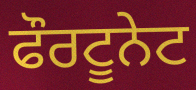
ਫੌਰਟੂਨੇਟ